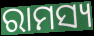
ରାମସ୍ୟ